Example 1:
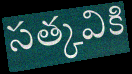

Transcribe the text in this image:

సత్కవికి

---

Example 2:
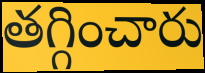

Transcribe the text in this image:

తగ్గించారు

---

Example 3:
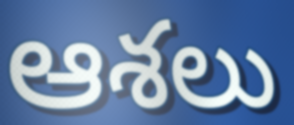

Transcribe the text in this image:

ఆశలు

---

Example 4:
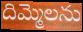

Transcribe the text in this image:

దిమ్మెలను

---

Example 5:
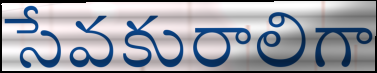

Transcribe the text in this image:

సేవకురాలిగా